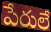
పేరులే